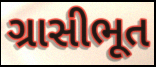
ગ્રાસીભૂત